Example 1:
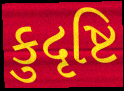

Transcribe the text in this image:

કુદૃષ્ટિ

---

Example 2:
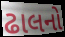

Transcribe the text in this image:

ઢાલનો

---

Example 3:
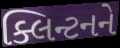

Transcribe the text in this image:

ક્લિન્ટનને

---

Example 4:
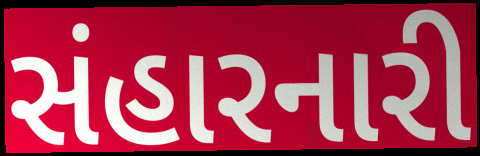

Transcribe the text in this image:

સંહારનારી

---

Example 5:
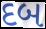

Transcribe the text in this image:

દબ